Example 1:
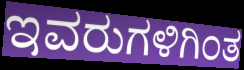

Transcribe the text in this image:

ಇವರುಗಳಿಗಿಂತ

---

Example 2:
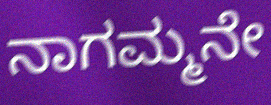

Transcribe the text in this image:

ನಾಗಮ್ಮನೇ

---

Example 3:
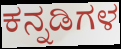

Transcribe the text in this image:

ಕನ್ನಡಿಗಳ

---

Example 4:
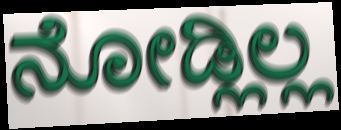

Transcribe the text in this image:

ನೋಡ್ಲಿಲ್ಲ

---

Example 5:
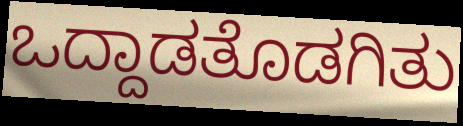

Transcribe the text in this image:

ಒದ್ದಾಡತೊಡಗಿತು